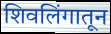
शिवलिंगातून